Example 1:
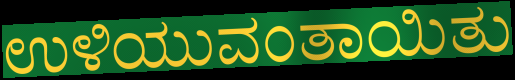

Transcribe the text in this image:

ಉಳಿಯುವಂತಾಯಿತು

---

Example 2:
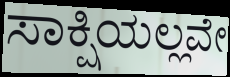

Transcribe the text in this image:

ಸಾಕ್ಷಿಯಲ್ಲವೇ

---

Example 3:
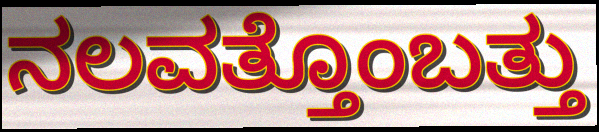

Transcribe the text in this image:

ನಲವತ್ತೊಂಬತ್ತು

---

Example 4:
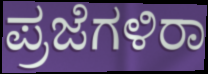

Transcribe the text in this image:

ಪ್ರಜೆಗಳಿರಾ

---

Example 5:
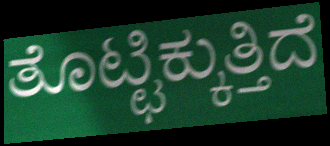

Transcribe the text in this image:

ತೊಟ್ಟಿಕ್ಕುತ್ತಿದೆ